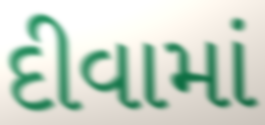
દીવામાં